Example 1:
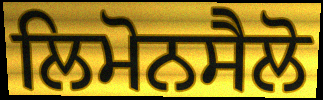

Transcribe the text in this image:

ਲਿਮੋਨਸੈਲੋ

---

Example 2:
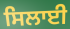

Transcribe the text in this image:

ਸਿਲਾਈ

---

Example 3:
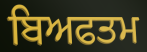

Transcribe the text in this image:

ਬਿਅਫਤਮ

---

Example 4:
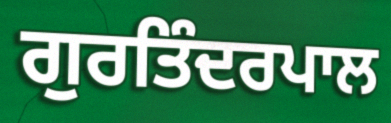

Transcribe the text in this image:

ਗੁਰਤਿੰਦਰਪਾਲ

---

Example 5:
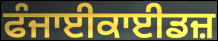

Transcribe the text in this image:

ਫੰਜਾਈਕਾਈਡਜ਼